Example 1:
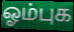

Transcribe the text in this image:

ஓம்புக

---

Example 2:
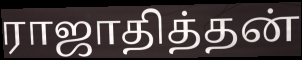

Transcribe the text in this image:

ராஜாதித்தன்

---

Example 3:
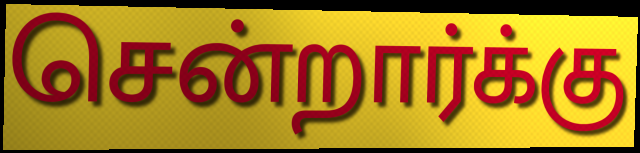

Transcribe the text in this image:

சென்றார்க்கு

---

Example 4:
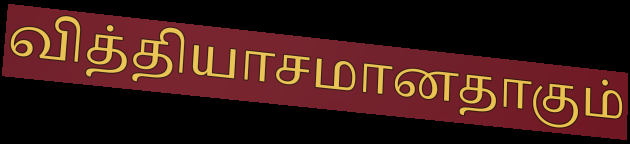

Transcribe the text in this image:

வித்தியாசமானதாகும்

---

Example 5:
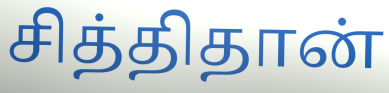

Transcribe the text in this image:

சித்திதான்